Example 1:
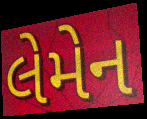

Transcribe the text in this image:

લેમેન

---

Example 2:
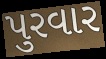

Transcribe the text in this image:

પુરવાર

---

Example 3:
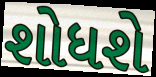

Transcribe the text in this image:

શોધશે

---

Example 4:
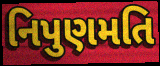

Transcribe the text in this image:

નિપુણમતિ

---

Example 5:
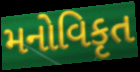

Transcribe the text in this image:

મનોવિકૃત